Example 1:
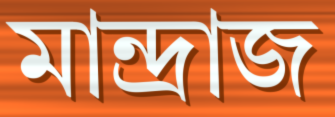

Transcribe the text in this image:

মান্দ্রাজ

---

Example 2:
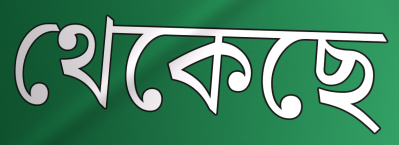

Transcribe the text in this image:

থেকেছে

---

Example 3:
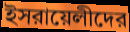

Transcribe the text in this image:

ইসরায়েলীদের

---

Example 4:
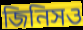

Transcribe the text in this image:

জিনিসও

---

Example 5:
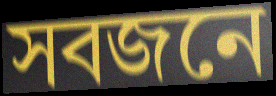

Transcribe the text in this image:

সবজনে